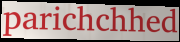
parichchhed